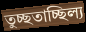
তুচ্ছতাচ্ছিল্য